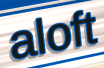
aloft